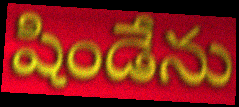
షిండేను